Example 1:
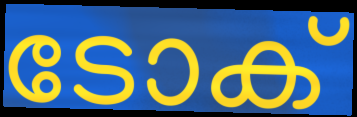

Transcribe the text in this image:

ടോക്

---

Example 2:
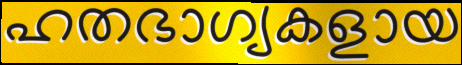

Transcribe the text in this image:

ഹതഭാഗ്യകളായ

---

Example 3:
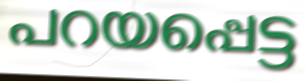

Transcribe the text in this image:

പറയപ്പെട്ട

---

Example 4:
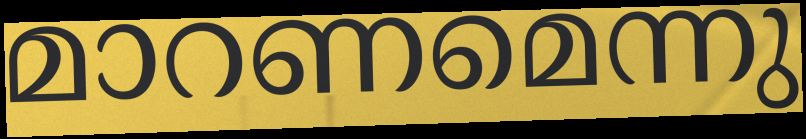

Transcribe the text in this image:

മാറണമെന്നു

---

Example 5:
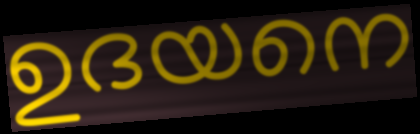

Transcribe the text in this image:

ഉദയനെ